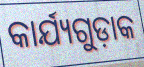
କାର୍ଯ୍ୟଗୁଡ଼ାକ